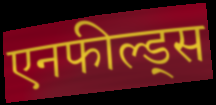
एनफील्ड्स